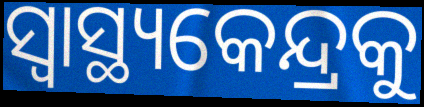
ସ୍ୱାସ୍ଥ୍ୟକେନ୍ଦ୍ରକୁ